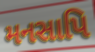
મનસાપિ